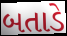
બતાડે